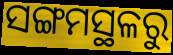
ସଙ୍ଗମସ୍ଥଳରୁ